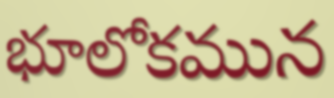
భూలోకమున